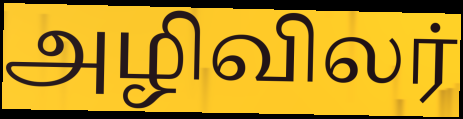
அழிவிலர்